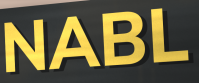
NABL